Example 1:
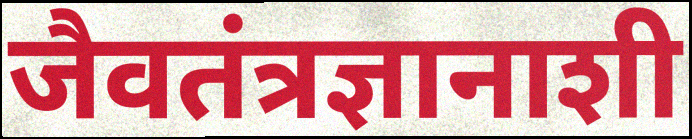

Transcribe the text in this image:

जैवतंत्रज्ञानाशी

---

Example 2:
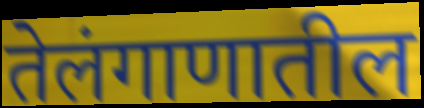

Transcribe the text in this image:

तेलंगाणातील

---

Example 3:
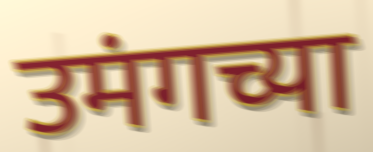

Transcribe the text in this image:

उमंगच्या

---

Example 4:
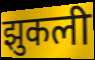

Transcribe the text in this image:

झुकली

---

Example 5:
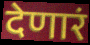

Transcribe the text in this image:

देणारं